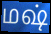
மஷ்